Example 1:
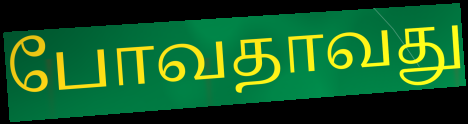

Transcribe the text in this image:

போவதாவது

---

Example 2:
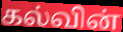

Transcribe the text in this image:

கல்வின்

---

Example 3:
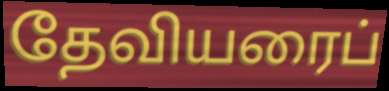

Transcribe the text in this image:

தேவியரைப்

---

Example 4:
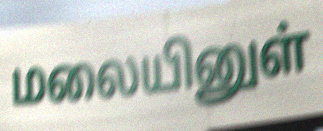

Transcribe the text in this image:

மலையினுள்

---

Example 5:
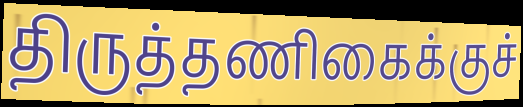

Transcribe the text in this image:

திருத்தணிகைக்குச்